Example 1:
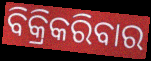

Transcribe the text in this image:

ବିକ୍ରିକରିବାର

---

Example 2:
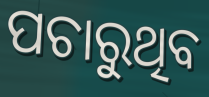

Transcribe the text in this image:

ପଚାରୁଥିବ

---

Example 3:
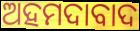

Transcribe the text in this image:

ଅହମଦାବାଦ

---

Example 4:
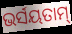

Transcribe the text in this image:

ଭର୍ସୟତାମ୍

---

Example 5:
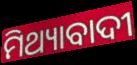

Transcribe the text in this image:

ମିଥ୍ୟାବାଦୀ